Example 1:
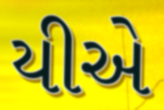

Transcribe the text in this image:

યીએ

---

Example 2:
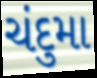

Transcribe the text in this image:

ચંદુમા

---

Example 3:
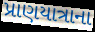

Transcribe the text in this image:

પ્રાણયાત્રાના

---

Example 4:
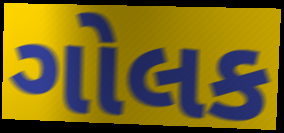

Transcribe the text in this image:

ગોલક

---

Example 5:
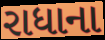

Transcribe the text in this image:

રાધાના